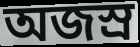
অজস্র